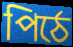
পিঠে